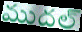
ముదల్